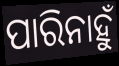
ପାରିନାହୁଁ